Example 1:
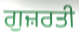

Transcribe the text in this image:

ਗੁਜ਼ਰਤੀ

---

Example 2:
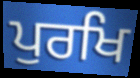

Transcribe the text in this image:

ਪੁਰਖਿ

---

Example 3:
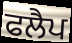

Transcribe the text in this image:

ਫਲੈਪ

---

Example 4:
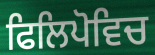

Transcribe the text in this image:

ਫਿਲਿਪੋਵਿਚ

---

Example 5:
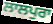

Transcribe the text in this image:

ਲਾਲਪੁਰਾ